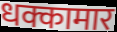
धक्कामार